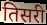
तिसरी